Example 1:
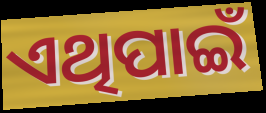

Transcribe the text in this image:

ଏଥିପାଇଁ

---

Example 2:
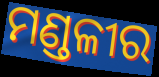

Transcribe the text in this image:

ମଣ୍ଡଳୀର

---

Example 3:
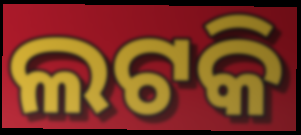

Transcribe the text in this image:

ଲଟକି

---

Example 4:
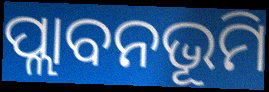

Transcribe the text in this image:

ପ୍ଲାବନଭୂମି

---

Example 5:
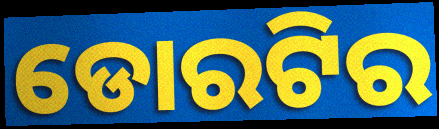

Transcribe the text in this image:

ଡୋରଟିର